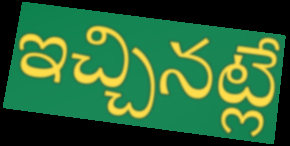
ఇచ్చినట్లే